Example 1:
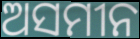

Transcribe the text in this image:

ଅସମୀନ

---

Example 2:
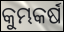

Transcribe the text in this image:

କୁମ୍ଭକର୍ଷ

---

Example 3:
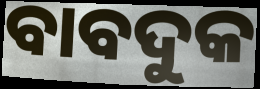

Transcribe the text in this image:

ବାବଦୁକ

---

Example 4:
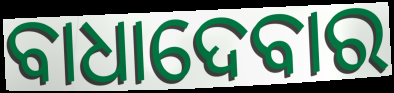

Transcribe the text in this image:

ବାଧାଦେବାର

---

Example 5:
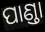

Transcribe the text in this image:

ପାଣ୍ଡା